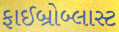
ફાઈબ્રોબ્લાસ્ટ